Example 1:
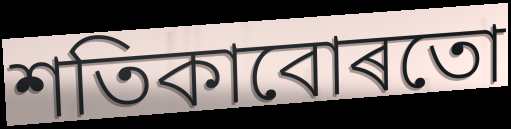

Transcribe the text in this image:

শতিকাবোৰতো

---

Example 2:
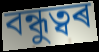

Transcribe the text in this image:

বন্ধুত্বৰ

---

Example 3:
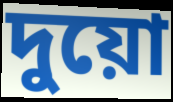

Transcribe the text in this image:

দুয়ো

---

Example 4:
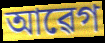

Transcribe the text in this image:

আৱেগ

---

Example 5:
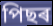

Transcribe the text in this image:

পিছৰ